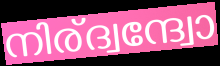
നിര്ദ്വന്ദ്വോ